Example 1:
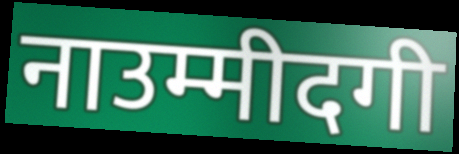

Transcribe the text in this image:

नाउम्मीदगी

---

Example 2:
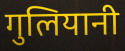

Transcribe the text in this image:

गुलियानी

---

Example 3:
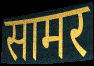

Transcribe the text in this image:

सामर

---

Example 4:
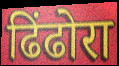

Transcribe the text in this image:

ढिंढोरा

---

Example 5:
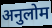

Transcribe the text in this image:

अनुलोम